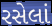
રસેલાં